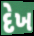
દેખ